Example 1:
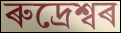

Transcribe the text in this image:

ৰুদ্ৰেশ্বৰ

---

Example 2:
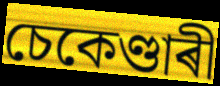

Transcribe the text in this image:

চেকেণ্ডাৰী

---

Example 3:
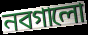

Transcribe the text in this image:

নবগালো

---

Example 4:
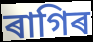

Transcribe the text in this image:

ৰাগিৰ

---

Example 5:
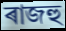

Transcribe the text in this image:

ৰাজহু